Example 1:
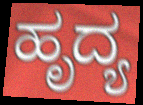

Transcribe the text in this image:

ಹೃದ್ಯ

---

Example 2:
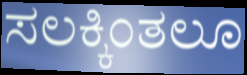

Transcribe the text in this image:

ಸಲಕ್ಕಿಂತಲೂ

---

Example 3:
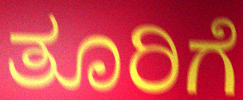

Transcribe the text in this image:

ತೂರಿಗೆ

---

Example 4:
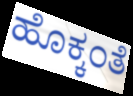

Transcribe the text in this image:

ಹೊಕ್ಕಂತೆ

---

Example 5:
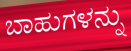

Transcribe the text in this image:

ಬಾಹುಗಳನ್ನು